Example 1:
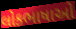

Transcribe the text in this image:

લોકભાષાઓ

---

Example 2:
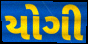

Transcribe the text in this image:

યોગી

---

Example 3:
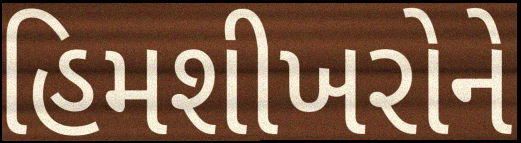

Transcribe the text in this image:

હિમશીખરોને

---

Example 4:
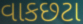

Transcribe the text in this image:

વાકછટા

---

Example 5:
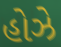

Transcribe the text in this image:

હોઝે